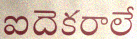
ఐదెకరాలే